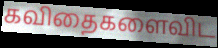
கவிதைகளைவிட